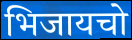
भिजायचो